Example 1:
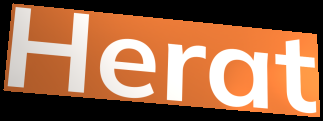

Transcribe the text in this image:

Herat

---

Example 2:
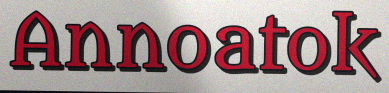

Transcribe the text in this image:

Annoatok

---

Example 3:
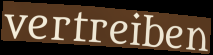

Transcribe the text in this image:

vertreiben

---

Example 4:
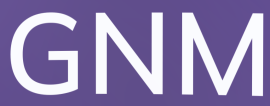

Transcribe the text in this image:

GNM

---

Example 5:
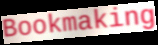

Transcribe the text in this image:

Bookmaking